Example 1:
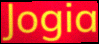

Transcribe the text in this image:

Jogia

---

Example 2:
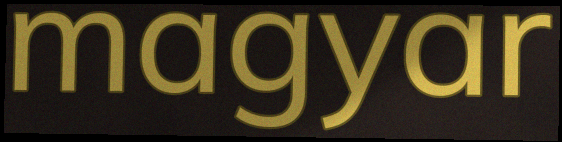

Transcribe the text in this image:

magyar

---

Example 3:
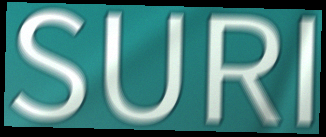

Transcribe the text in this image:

SURI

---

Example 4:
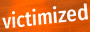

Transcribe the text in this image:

victimized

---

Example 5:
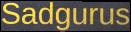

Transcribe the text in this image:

Sadgurus